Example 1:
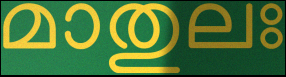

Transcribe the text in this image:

മാതുലഃ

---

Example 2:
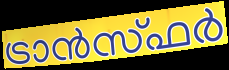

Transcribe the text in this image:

ട്രാൻസ്ഫർ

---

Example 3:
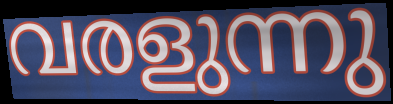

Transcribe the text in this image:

വരളുന്നു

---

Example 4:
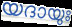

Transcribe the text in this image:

യദായുഃ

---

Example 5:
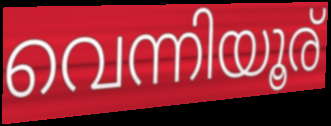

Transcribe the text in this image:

വെന്നിയൂര്